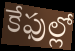
కేఫుల్లో